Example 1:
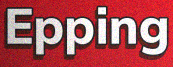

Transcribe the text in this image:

Epping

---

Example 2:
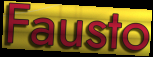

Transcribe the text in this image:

Fausto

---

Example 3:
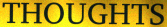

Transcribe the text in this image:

THOUGHTS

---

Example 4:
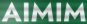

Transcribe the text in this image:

AIMIM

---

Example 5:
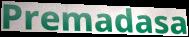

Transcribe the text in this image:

Premadasa